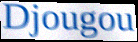
Djougou